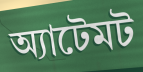
অ্যাটেমট